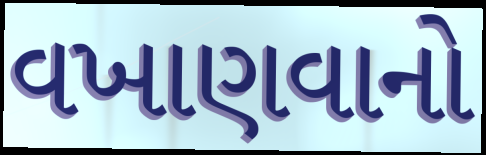
વખાણવાનો